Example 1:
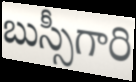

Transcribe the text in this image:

బుస్సీగారి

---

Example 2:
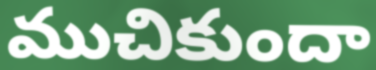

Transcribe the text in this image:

ముచికుందా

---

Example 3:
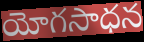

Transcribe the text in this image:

యోగసాధన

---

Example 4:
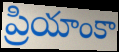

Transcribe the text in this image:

ప్రియాంకా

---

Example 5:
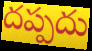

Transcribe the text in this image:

దప్పదు